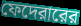
ফেদেরারের